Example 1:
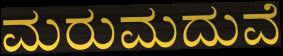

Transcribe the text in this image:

ಮರುಮದುವೆ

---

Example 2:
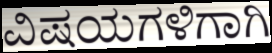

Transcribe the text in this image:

ವಿಷಯಗಳಿಗಾಗಿ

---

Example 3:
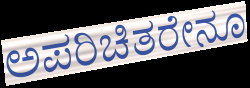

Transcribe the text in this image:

ಅಪರಿಚಿತರೇನೂ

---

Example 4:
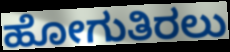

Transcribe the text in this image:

ಹೋಗುತಿರಲು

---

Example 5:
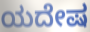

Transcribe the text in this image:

ಯದೇಷ